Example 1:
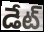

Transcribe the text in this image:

డేట్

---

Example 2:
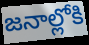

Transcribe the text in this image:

జనాల్లోకి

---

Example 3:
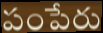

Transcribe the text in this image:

పంపేరు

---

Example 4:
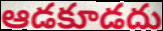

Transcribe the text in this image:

ఆడకూడదు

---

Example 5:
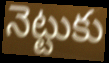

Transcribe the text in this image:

నెట్టుకు